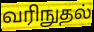
வரிநுதல்